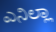
ಎನಿಲ್ಲಾ